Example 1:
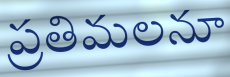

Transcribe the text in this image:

ప్రతిమలనూ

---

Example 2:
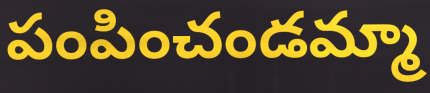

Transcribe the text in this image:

పంపించండమ్మా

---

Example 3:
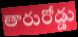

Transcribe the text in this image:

తారురోడ్డు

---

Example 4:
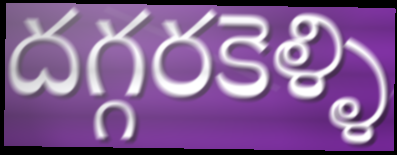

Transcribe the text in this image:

దగ్గరకెళ్ళి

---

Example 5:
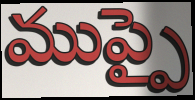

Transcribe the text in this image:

ముప్పై